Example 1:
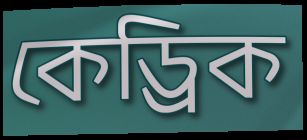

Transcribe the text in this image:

কেড্রিক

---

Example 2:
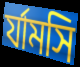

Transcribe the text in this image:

র্যামসি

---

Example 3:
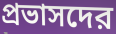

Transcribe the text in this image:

প্রভাসদের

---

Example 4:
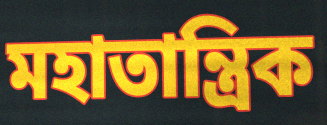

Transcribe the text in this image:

মহাতান্ত্রিক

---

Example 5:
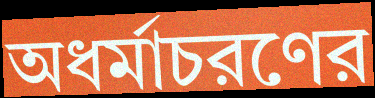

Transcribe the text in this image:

অধর্মাচরণের